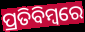
ପ୍ରତିବିମ୍ବରେ